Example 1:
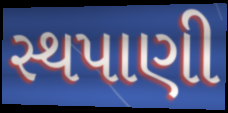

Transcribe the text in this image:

સ્થપાણી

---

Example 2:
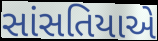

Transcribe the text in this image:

સાંસતિયાએ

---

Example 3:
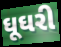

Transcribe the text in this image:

ઘૂઘરી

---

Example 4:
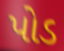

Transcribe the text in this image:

પોડ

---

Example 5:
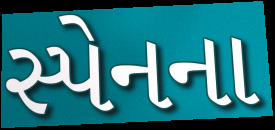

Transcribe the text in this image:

સ્પેનના